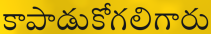
కాపాడుకోగలిగారు